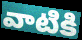
వాటికి